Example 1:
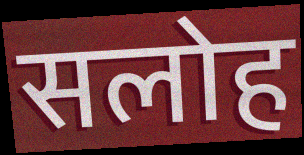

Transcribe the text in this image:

सलोह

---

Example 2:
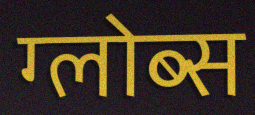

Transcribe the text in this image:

ग्लोब्स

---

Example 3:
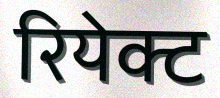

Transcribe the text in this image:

रियेक्ट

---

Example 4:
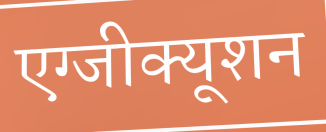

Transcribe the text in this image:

एग्जीक्यूशन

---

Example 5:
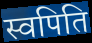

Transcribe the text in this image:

स्वपिति